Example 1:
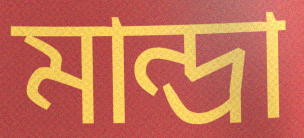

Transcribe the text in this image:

মান্দ্রা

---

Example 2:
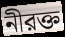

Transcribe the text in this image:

নীরক্ত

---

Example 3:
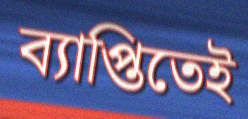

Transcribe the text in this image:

ব্যাপ্তিতেই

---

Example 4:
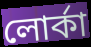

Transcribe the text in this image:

লোর্কা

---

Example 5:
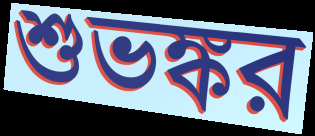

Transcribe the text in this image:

শুভঙ্কর